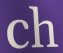
ch